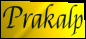
Prakalp